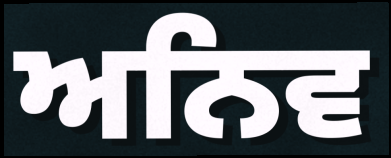
ਅਨਿਵ